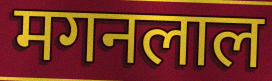
मगनलाल